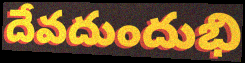
దేవదుందుభి